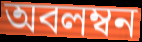
অবলম্বন